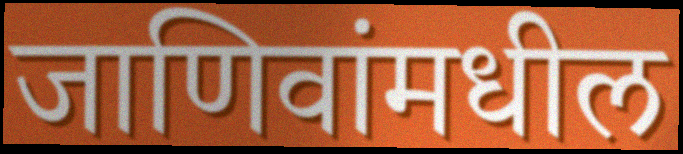
जाणिवांमधील